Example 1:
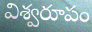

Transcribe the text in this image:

విశ్వరూపం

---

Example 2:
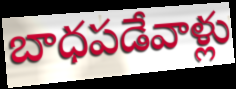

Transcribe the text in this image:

బాధపడేవాళ్లు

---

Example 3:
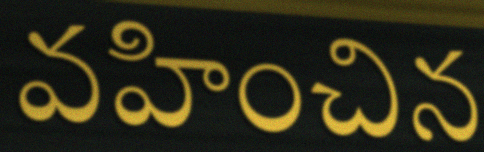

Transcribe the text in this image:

వహించిన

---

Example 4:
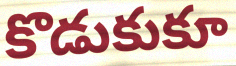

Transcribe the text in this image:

కొడుకుకూ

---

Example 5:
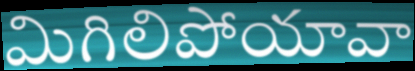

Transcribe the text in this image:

మిగిలిపోయావా